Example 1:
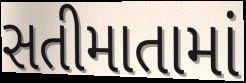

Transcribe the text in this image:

સતીમાતામાં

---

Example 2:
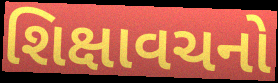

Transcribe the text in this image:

શિક્ષાવચનો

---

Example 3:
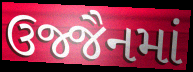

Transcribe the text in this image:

ઉજ્જૈનમાં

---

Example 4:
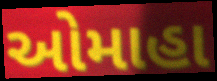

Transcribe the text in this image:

ઓમાહા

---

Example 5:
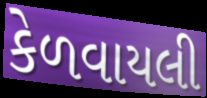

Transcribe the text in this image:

કેળવાયલી